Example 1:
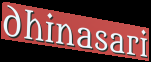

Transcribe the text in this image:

dhinasari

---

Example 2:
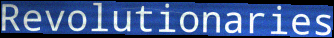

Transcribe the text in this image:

Revolutionaries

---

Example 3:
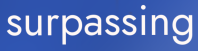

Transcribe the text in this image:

surpassing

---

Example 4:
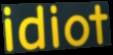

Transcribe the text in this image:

idiot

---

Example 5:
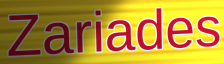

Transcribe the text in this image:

Zariades